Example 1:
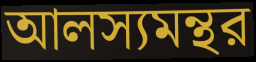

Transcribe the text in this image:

আলস্যমন্থর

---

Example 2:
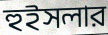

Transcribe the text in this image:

হুইসলার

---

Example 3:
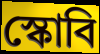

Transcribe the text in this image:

স্কোবি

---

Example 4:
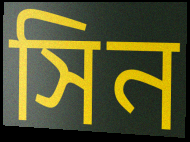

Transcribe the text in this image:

সিন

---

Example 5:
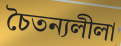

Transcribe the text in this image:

চৈতন্যলীলা